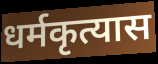
धर्मकृत्यास